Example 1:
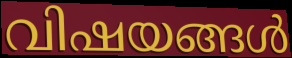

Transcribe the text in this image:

വിഷയങ്ങൾ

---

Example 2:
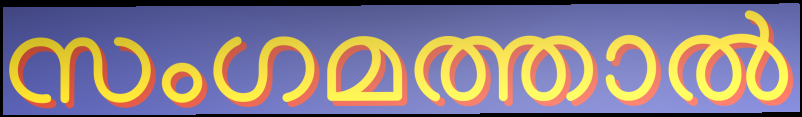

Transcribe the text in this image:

സംഗമത്താൽ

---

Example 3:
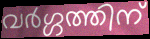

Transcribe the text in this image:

വർഗ്ഗത്തിന്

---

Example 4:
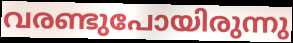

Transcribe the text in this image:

വരണ്ടുപോയിരുന്നു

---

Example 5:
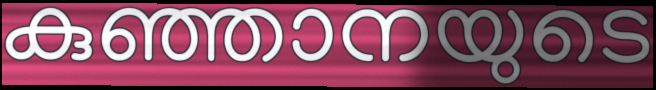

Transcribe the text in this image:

കുഞ്ഞാനയുടെ